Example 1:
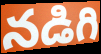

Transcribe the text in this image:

నడిగి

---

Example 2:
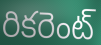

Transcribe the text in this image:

రికరెంట్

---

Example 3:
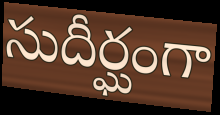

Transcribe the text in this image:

సుదీర్ఘంగా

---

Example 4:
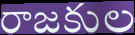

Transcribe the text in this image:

రాజకుల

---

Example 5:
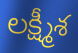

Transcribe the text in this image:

లక్ష్మీశ